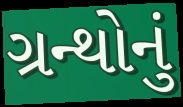
ગ્રન્થોનું